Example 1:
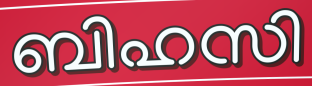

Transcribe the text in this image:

ബിഹസി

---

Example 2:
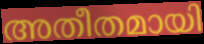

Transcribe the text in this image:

അതീതമായി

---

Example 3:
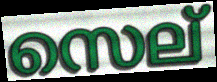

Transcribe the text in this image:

സെല്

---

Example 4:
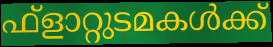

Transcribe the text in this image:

ഫ്ളാറ്റുടമകൾക്ക്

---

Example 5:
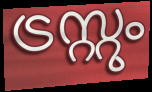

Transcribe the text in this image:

ട്രസ്റ്റും